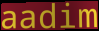
aadim